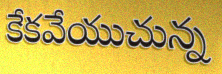
కేకవేయుచున్న